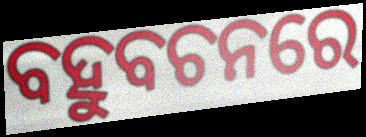
ବହୁବଚନରେ